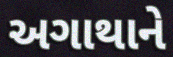
અગાથાને